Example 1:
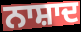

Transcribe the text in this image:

ਨਾਸ਼ਾਦ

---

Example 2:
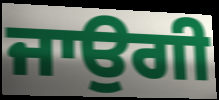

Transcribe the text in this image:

ਜਾਉਗੀ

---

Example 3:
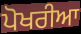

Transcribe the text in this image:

ਪੋਖਰੀਆ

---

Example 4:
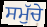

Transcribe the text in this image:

ਸਮੁੱਚੇ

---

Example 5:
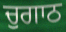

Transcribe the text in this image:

ਚੁਗਾਠ